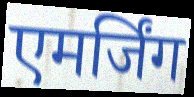
एमर्जिंग